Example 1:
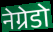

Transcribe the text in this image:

नेग्रेडो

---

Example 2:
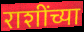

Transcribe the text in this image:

राशींच्या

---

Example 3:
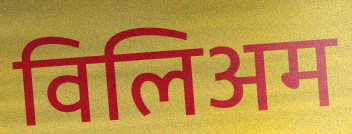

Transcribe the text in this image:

विलिअम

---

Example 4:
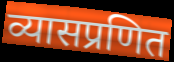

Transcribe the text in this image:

व्यासप्रणित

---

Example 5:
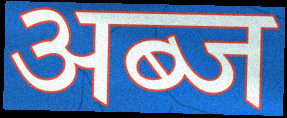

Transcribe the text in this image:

अब्ज